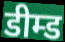
डीम्ड